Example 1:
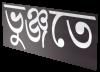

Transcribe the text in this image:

ভুঞ্জতে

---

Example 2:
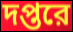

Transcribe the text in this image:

দপ্তরে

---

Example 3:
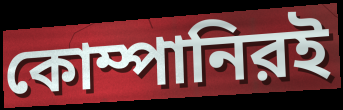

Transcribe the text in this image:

কোম্পানিরই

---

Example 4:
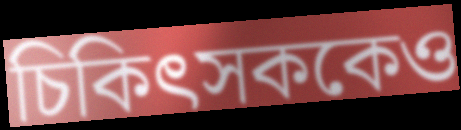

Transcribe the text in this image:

চিকিৎসককেও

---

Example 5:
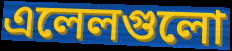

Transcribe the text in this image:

এলেলগুলো